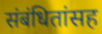
संबंधितांसह